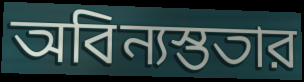
অবিন্যস্ততার